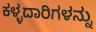
ಕಳ್ಳದಾರಿಗಳನ್ನು